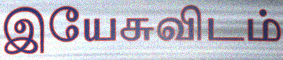
இயேசுவிடம்